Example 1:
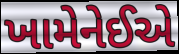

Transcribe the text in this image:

ખામેનેઈએ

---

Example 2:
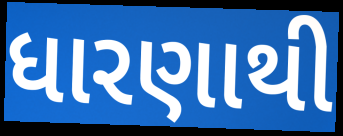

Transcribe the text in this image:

ધારણાથી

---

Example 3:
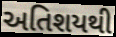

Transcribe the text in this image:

અતિશયથી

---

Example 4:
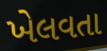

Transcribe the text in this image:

ખેલવતા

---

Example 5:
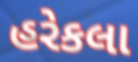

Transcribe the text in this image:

હરેકલા